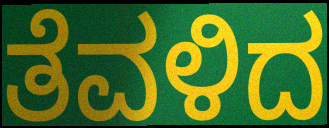
ತೆವಳಿದ